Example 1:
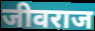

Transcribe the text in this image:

जीवराज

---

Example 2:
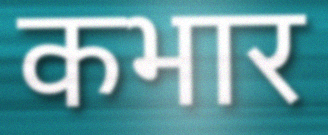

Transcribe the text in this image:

कभार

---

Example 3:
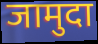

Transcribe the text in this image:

जामुदा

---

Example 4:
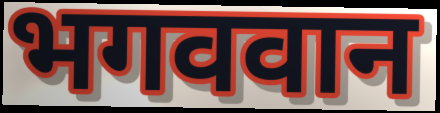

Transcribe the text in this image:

भगववान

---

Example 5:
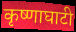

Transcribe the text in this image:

कृष्णाघाटी